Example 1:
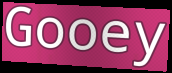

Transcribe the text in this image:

Gooey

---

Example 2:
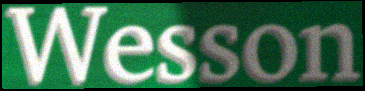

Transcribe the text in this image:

Wesson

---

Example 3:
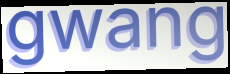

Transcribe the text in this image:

gwang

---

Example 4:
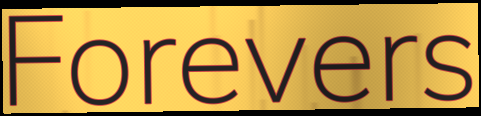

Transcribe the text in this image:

Forevers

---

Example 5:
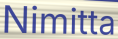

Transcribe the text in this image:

Nimitta